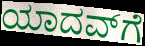
ಯಾದವ್‌ಗೆ